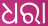
ଧରା